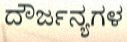
ದೌರ್ಜನ್ಯಗಳ